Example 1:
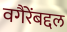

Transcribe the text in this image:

वगैरेंबद्दल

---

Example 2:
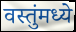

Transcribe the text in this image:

वस्तुंमध्ये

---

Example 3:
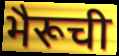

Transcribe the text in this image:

भैरूची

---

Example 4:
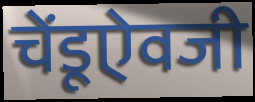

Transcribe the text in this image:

चेंडूऐवजी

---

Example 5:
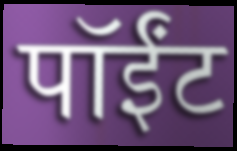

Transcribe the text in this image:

पॉईंट